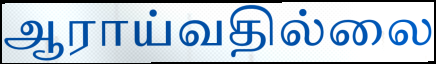
ஆராய்வதில்லை